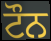
ਟੌਨ